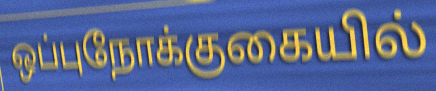
ஒப்புநோக்குகையில்